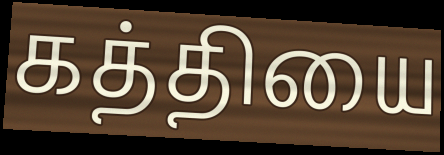
கத்தியை